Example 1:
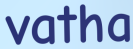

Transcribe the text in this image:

vatha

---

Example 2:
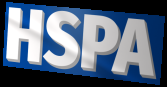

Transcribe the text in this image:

HSPA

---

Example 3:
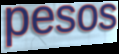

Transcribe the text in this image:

pesos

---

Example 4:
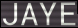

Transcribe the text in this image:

JAYE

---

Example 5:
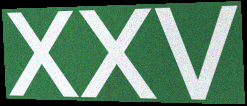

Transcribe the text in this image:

xxv